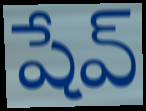
షేవ్